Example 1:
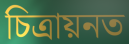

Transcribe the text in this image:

চিত্ৰায়নত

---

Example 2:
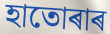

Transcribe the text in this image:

হাতোৰাৰ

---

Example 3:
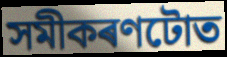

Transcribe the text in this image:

সমীকৰণটোত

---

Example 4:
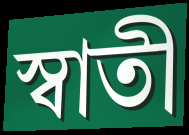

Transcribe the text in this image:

স্বাতী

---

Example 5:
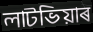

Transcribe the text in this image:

লাটভিয়াৰ